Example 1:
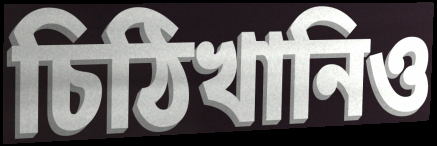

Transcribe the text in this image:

চিঠিখানিও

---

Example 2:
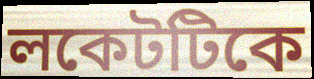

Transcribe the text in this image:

লকেটটিকে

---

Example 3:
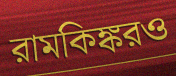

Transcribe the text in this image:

রামকিঙ্করও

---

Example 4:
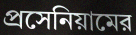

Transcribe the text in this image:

প্রসেনিয়ামের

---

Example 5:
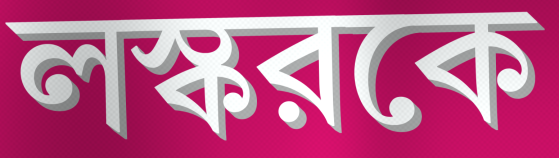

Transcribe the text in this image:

লস্করকে